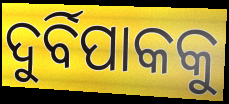
ଦୁର୍ବିପାକକୁ